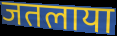
जतलाया